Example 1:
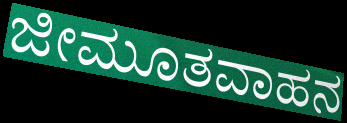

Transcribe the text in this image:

ಜೀಮೂತವಾಹನ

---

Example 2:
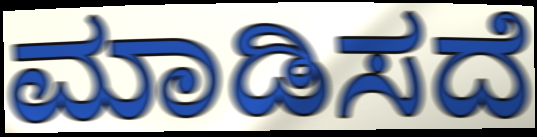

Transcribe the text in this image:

ಮಾಡಿಸದೆ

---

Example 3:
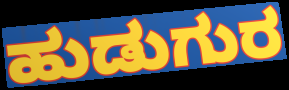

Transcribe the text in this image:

ಹುಡುಗುರ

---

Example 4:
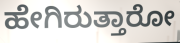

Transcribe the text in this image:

ಹೇಗಿರುತ್ತಾರೋ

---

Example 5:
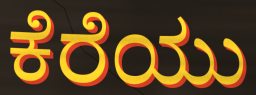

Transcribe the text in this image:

ಕೆರೆಯು